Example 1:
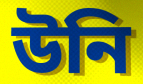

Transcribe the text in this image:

উনি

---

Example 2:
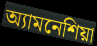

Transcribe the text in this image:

অ্যামনেশিয়া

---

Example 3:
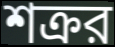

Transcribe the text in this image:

শক্রর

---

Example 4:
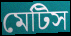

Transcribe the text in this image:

মেটিস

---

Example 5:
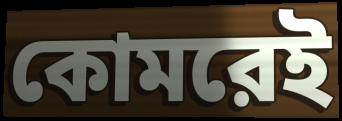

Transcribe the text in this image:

কোমরেই